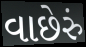
વાછેરું